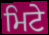
ਮਿਟੇ